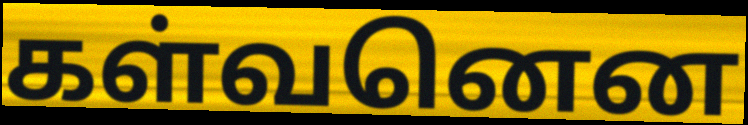
கள்வனென